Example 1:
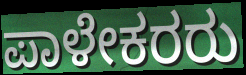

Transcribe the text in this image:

ಪಾಳೇಕರರು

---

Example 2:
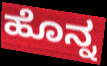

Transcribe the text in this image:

ಹೊನ್ನ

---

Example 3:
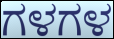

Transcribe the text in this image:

ಗಳಗಳ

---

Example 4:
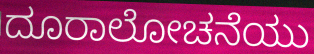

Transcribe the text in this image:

ದೂರಾಲೋಚನೆಯು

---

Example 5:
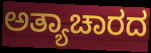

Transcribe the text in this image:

ಅತ್ಯಾಚಾರದ